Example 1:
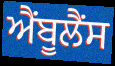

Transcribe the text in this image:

ਐੰਬੂਲੈੰਸ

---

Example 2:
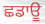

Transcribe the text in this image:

ਛਡਾਊ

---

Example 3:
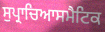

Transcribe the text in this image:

ਸੁਪ੍ਰਾਚਿਆਸਮੈਟਿਕ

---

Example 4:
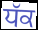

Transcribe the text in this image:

ਧੱਕ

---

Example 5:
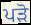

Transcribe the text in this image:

ਪੜੋ